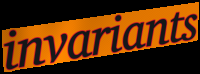
invariants